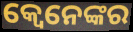
କ୍ବେନେଙ୍କର